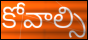
కోవాల్సి